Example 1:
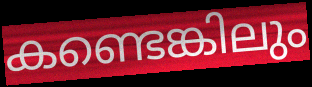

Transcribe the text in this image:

കണ്ടെങ്കിലും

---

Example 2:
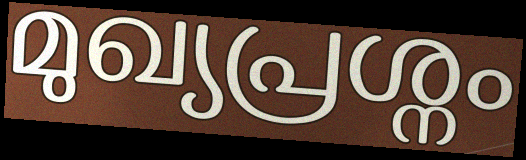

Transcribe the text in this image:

മുഖ്യപ്രശ്നം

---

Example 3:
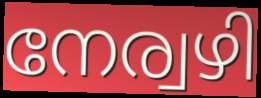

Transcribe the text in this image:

നേര്വഴി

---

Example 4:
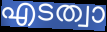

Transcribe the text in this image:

എടത്വാ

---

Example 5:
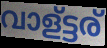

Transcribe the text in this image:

വാള്ട്ടര്